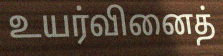
உயர்வினைத்